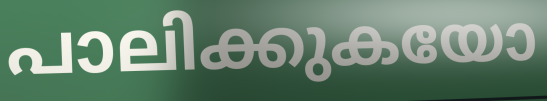
പാലിക്കുകയോ